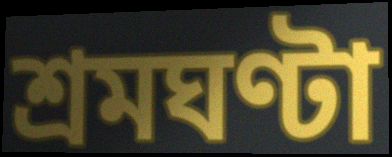
শ্রমঘণ্টা